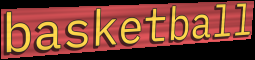
basketball